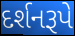
દર્શનરૂપે